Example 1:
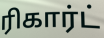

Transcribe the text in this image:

ரிகார்ட்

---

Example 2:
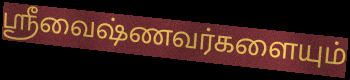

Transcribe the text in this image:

ஸ்ரீவைஷ்ணவர்களையும்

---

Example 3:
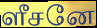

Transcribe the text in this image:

ளீசனே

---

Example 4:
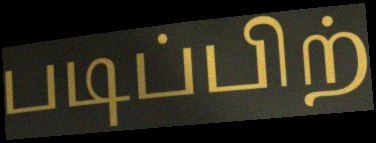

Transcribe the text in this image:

படிப்பிற்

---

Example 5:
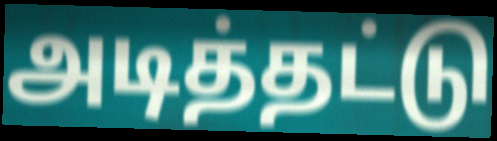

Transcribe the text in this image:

அடித்தட்டு